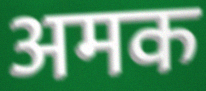
अमक